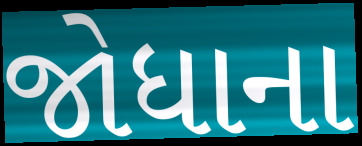
જોધાના